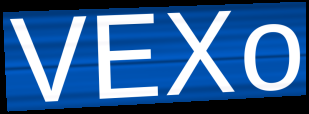
VEXo